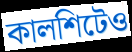
কালশিটেও